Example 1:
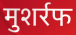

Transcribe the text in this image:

मुशर्रफ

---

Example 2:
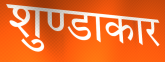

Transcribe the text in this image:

शुण्डाकार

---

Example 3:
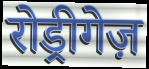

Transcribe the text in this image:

रोड्रीगेज़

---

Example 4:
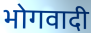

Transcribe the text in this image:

भोगवादी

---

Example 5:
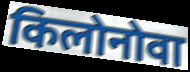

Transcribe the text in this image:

किलोनोवा